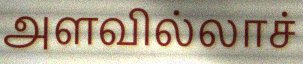
அளவில்லாச்